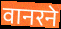
वानरने